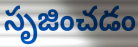
సృజించడం